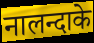
नालन्दाके